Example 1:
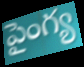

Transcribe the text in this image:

పైంగ్య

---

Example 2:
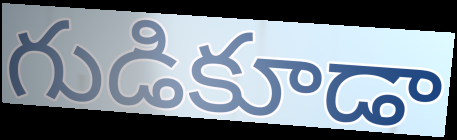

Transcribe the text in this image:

గుడికూడా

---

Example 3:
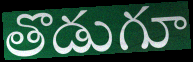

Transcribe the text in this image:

తొడుగూ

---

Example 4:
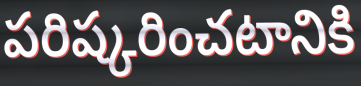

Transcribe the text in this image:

పరిష్కరించటానికి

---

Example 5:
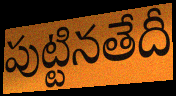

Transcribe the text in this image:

పుట్టినతేదీ